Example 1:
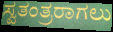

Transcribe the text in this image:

ಸ್ವತಂತ್ರರಾಗಲು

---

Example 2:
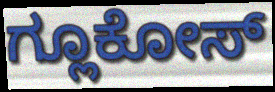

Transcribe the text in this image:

ಗ್ಲೂಕೋಸ್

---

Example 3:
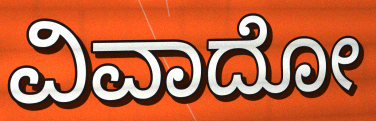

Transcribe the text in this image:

ವಿವಾದೋ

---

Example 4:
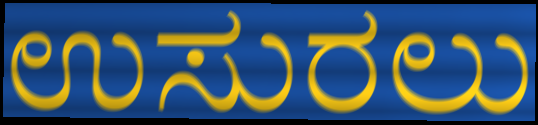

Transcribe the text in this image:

ಉಸುರಲು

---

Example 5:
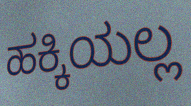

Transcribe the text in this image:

ಹಕ್ಕಿಯಲ್ಲ